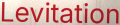
Levitation